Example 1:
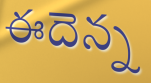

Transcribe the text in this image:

ఈదెన్న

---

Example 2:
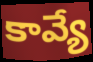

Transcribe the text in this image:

కావ్యే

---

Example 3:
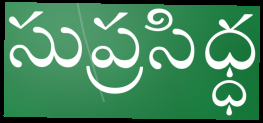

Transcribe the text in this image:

సుప్రసిధ్ధ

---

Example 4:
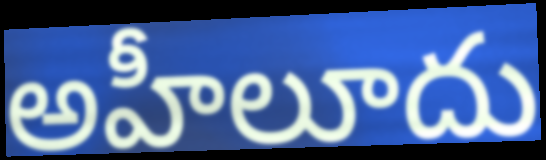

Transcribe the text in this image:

అహీలూదు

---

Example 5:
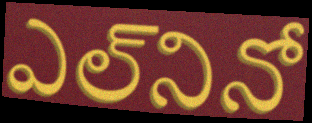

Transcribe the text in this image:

ఎల్‌నినో